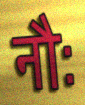
नौः